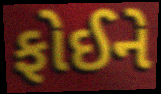
ફોઈને